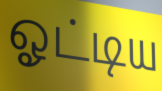
ஓட்டிய